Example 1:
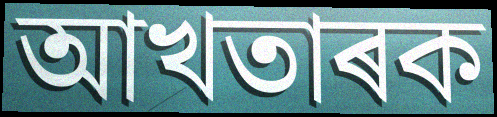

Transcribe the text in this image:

আখতাৰক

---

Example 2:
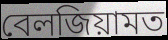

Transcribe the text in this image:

বেলজিয়ামত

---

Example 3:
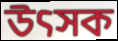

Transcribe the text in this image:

উৎসক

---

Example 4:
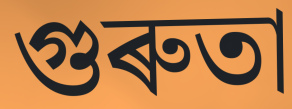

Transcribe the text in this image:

গুৰুতা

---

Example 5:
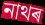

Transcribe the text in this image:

নাথৰ